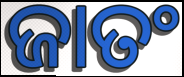
ଜାତଂ